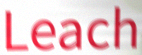
Leach